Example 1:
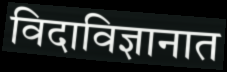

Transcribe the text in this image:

विदाविज्ञानात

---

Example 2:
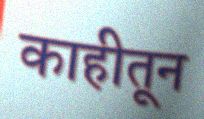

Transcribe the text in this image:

काहीतून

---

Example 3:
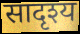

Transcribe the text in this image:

सादृश्य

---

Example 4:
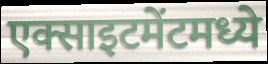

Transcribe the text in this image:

एक्साइटमेंटमध्ये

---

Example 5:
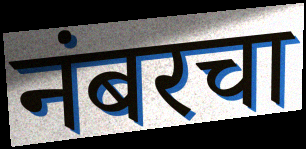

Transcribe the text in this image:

नंबरचा